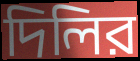
দিলির